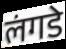
लंगडे